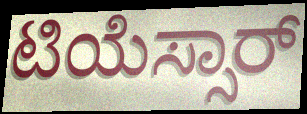
ಟಿಯೆಸ್ಸಾರ್